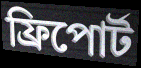
ফ্রিপোর্ট